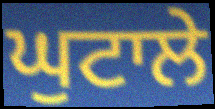
ਘੁਟਾਲੇ